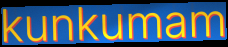
kunkumam